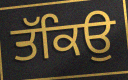
ਤੱਕਿਉ